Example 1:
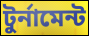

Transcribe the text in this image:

টুর্নামেন্ট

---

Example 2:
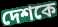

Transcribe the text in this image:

দেশকে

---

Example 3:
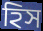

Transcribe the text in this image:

হিস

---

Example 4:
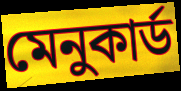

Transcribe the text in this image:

মেনুকার্ড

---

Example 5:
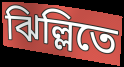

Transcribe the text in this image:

ঝিল্লিতে